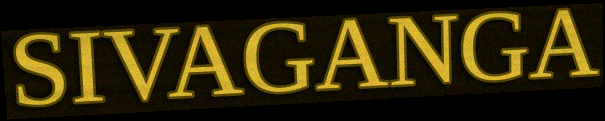
SIVAGANGA